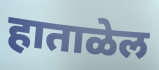
हाताळेल